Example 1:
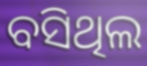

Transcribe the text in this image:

ବସିଥିଲ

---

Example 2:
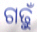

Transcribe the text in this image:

ଗଢ଼ୁଁ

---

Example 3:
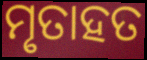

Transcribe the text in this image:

ମୃତାହତ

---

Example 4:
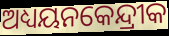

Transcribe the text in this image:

ଅଧ୍ୟୟନକେନ୍ଦ୍ରୀକ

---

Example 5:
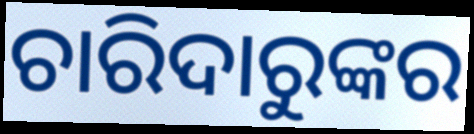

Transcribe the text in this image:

ଚାରିଦାରୁଙ୍କର